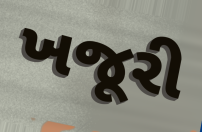
ખજૂરી